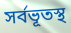
সর্বভূতস্থ